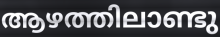
ആഴത്തിലാണ്ടു